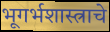
भूगर्भशास्त्राचे